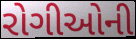
રોગીઓની